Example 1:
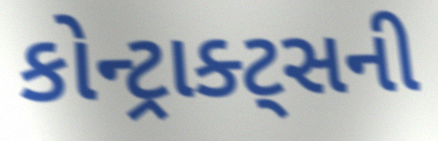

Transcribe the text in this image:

કોન્ટ્રાક્ટ્સની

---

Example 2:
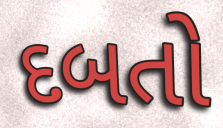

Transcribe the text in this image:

દબતો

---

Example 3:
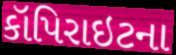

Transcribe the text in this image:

કૉપિરાઇટના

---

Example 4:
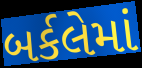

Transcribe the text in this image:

બર્કલેમાં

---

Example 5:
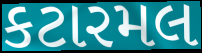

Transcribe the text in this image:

કટારમલ